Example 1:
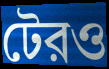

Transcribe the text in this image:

টেরও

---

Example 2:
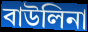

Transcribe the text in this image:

বাউলিনা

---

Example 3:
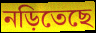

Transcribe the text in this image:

নড়িতেছে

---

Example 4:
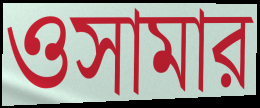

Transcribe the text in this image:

ওসামার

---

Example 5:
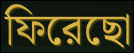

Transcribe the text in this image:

ফিরেছো